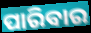
ପାରିବାର